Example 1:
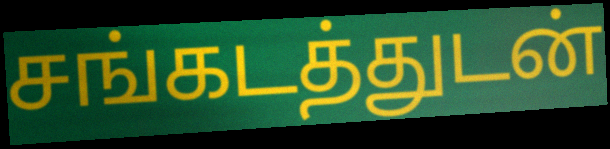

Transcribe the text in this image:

சங்கடத்துடன்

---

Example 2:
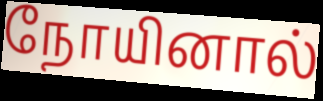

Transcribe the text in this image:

நோயினால்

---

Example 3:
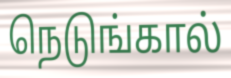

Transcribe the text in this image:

நெடுங்கால்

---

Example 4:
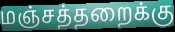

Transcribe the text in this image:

மஞ்சத்தறைக்கு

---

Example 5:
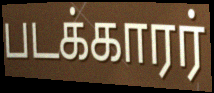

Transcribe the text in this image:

படக்காரர்